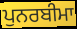
ਪੁਨਰਬੀਮਾ